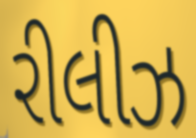
રીલીઝ